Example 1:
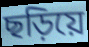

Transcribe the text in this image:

ছড়িয়ে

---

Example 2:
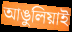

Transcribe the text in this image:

আঙুলিয়াই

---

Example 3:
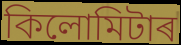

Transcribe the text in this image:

কিলোমিটাৰ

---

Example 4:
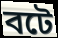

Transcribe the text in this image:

বটে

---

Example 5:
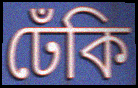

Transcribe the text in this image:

ঢেঁকি